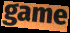
game